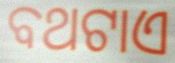
ବଥଟାଏ